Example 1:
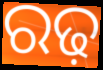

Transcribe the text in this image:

ରଢ଼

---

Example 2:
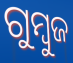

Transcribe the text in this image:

ଗୁମ୍ବୁଜ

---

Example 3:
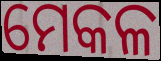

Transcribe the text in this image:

ମେକଳ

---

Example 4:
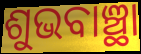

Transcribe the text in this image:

ଶୁଭବାଞ୍ଛା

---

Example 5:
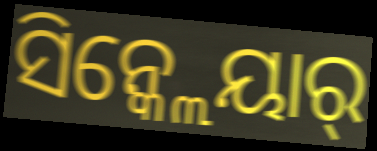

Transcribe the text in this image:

ସିନ୍କ୍ଲେୟାର୍